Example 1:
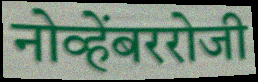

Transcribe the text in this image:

नोव्हेंबररोजी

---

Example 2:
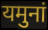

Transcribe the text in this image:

यमुनां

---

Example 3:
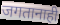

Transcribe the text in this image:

जगतानाही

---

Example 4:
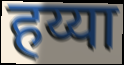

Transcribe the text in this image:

हय्या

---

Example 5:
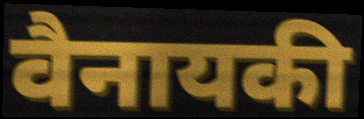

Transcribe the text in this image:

वैनायकी